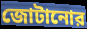
জোটানোর